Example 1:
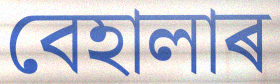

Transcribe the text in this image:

বেহালাৰ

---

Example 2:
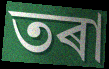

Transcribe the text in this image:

তৰা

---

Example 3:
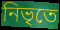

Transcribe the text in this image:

নিভৃতে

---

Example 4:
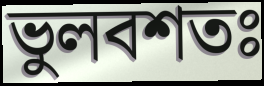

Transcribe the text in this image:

ভুলবশতঃ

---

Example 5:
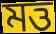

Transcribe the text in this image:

মত্ত